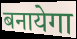
बनायेगा